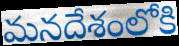
మనదేశంలోకి